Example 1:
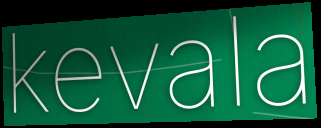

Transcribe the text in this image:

kevala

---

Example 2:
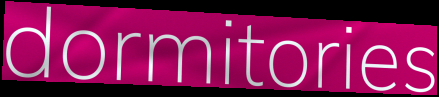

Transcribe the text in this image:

dormitories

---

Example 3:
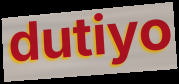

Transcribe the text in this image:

dutiyo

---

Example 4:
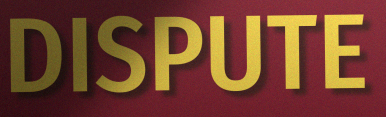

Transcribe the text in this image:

DISPUTE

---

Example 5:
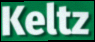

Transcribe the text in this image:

Keltz